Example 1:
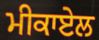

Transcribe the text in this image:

ਮੀਕਾਏਲ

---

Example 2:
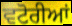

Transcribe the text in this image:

ਵਟੋਰੀਆਂ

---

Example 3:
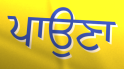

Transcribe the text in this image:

ਪਾਉਣਾ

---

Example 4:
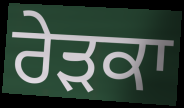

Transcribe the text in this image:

ਰੇੜਕਾ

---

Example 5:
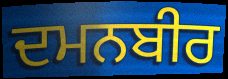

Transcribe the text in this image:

ਦਮਨਬੀਰ